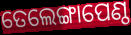
ତେଲେଙ୍ଗାପେଣ୍ଠ